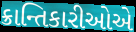
ક્રાન્તિકારીઓએ